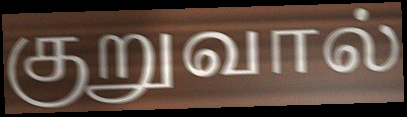
குறுவால்